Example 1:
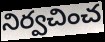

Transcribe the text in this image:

నిర్వచించ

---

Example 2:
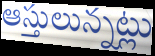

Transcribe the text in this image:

ఆస్తులున్నట్లు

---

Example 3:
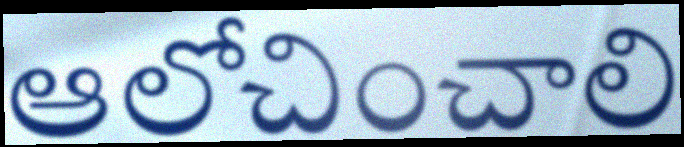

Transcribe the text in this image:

ఆలోచించాలి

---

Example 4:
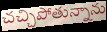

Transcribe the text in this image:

చచ్చిపోతున్నాను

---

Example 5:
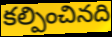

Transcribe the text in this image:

కల్పించినది